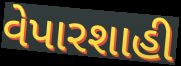
વેપારશાહી